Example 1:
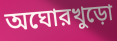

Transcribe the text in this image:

অঘোরখুড়ো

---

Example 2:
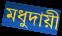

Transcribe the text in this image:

মধুদায়ী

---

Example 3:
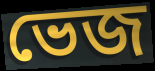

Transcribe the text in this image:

ভেজ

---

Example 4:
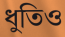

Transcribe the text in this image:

ধুতিও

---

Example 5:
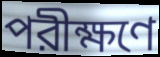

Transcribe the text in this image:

পরীক্ষণে